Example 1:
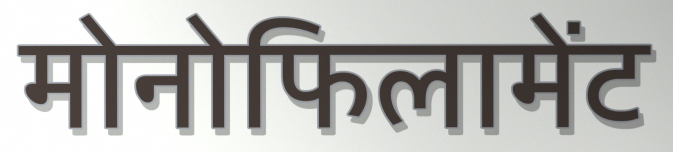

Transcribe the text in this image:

मोनोफिलामेंट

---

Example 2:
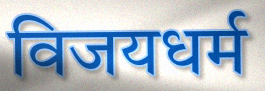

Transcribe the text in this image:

विजयधर्म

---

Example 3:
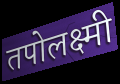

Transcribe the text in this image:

तपोलक्ष्मी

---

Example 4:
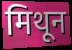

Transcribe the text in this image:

मिथून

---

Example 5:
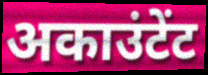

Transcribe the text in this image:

अकाउंटेंट